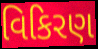
વિકિરણ